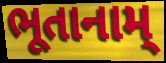
ભૂતાનામ્